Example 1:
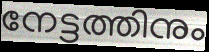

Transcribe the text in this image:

നേട്ടത്തിനും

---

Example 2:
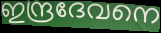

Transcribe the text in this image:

ഇന്ദ്രദേവനെ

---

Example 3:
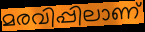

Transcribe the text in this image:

മരവിപ്പിലാണ്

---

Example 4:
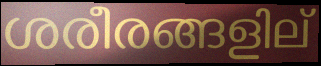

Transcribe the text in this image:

ശരീരങ്ങളില്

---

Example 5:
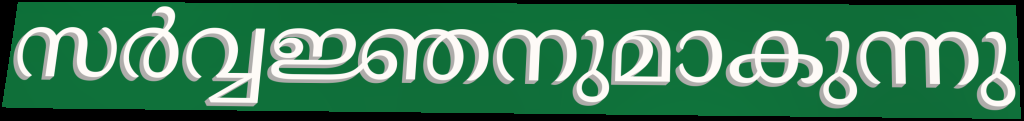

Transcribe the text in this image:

സർവ്വജ്ഞനുമാകുന്നു